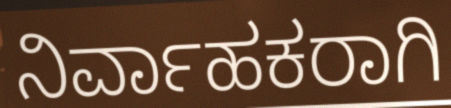
ನಿರ್ವಾಹಕರಾಗಿ